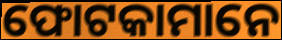
ଫୋଟକାମାନେ